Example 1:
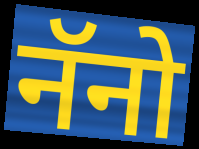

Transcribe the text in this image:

नॅनो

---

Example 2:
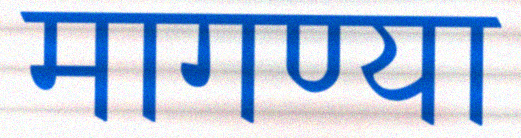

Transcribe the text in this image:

मागण्या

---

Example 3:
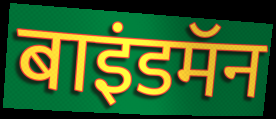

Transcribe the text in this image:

बाइंडमॅन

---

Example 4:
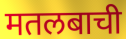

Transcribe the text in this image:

मतलबाची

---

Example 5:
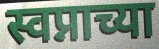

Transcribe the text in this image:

स्वप्नाच्या